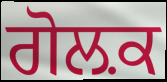
ਗੋਲ਼ਕ